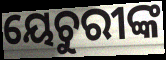
ୟେଚୁରୀଙ୍କ